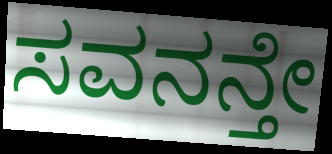
ಸವನನ್ತೇ